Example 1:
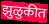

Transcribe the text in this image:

झुळुकीत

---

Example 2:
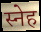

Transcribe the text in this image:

स्नेह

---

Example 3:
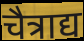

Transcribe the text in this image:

चैत्राद्य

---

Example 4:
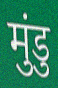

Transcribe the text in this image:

मुंडु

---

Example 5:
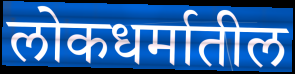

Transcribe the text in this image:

लोकधर्मातील